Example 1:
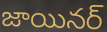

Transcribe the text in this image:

జాయినర్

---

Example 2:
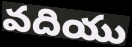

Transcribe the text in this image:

వదియు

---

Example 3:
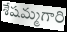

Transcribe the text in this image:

శేషమ్మగారి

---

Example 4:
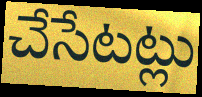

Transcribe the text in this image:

చేసేటట్లు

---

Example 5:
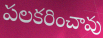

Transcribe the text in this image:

పలకరించావు